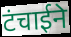
टंचाईने